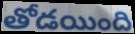
తోడయింది